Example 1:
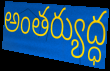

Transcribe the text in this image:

అంతర్యుద్ధ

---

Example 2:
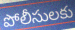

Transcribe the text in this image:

పోలీసులకు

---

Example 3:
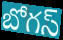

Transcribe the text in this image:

బోగస్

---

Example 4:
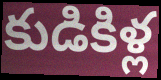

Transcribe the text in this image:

కుడికిళ్ల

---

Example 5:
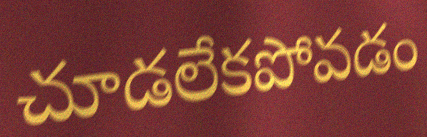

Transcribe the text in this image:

చూడలేకపోవడం